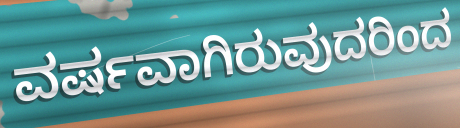
ವರ್ಷವಾಗಿರುವುದರಿಂದ